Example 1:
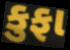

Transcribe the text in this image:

કુફા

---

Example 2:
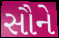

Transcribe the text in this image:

સૌને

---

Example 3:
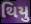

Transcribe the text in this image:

થિયુ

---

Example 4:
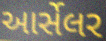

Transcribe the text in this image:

આર્સેલર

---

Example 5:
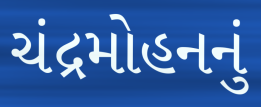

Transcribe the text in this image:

ચંદ્રમોહનનું